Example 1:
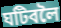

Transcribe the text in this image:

ঘটিবলৈ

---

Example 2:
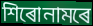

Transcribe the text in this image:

শিৰোনামৰে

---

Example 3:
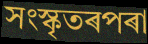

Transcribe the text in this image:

সংস্কৃতৰপৰা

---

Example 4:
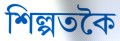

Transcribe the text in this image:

শিল্পতকৈ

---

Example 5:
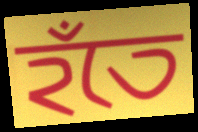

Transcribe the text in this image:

হঁতে